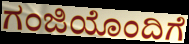
ಗಂಜಿಯೊಂದಿಗೆ